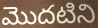
మొదటిని